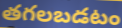
తగలబడటం